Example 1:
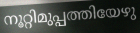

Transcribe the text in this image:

നൂറ്റിമുപ്പത്തിയേഴു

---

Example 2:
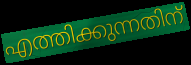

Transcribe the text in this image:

എത്തിക്കുന്നതിന്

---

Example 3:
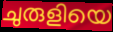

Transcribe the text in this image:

ചുരുളിയെ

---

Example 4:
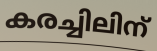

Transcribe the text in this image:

കരച്ചിലിന്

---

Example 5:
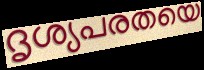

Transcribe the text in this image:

ദൃശ്യപരതയെ